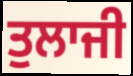
ਤੁਲਾਜੀ